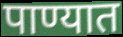
पाण्यात